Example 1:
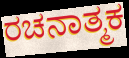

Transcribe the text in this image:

ರಚನಾತ್ಮಕ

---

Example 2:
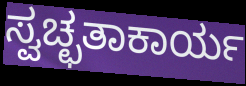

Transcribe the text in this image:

ಸ್ವಚ್ಛತಾಕಾರ್ಯ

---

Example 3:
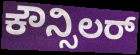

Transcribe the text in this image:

ಕೌನ್ಸಿಲರ್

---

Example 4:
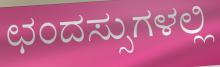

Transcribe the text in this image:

ಛಂದಸ್ಸುಗಳಲ್ಲಿ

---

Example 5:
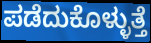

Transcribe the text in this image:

ಪಡೆದುಕೊಳ್ಳುತ್ತೆ